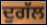
ਦੁਗੱਲ